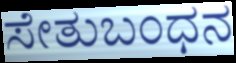
ಸೇತುಬಂಧನ